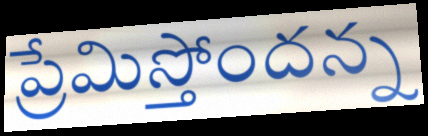
ప్రేమిస్తోందన్న